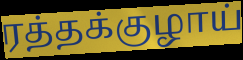
ரத்தக்குழாய்